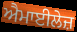
ਐਮਾਈਲੇਜ਼